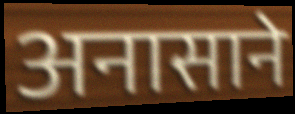
अनासाने